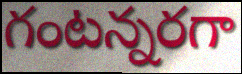
గంటన్నరగా